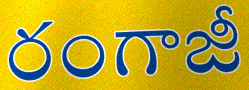
రంగాజీ